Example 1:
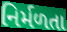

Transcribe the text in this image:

નિર્મળતા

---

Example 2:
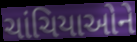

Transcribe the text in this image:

ચાંચિયાઓને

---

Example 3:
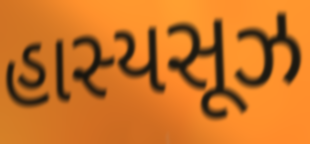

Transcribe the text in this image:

હાસ્યસૂઝ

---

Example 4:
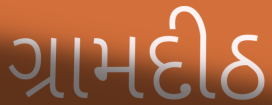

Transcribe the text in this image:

ગ્રામદીઠ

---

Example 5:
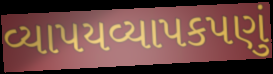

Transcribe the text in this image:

વ્યાપયવ્યાપકપણું